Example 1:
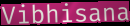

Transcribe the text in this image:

Vibhisana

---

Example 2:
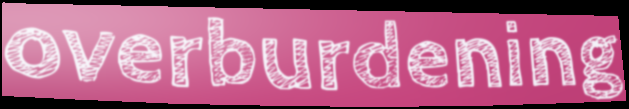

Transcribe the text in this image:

overburdening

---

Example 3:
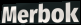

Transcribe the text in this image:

Merbok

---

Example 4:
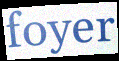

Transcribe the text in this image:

foyer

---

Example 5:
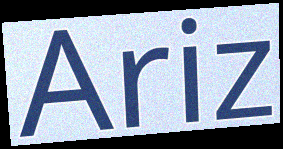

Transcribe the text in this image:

Ariz